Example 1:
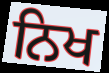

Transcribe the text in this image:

ਨਿਖ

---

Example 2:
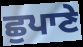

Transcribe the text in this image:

ਛੁਪਾਣੇ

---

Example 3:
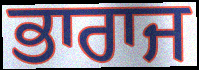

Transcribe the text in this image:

ਭਾਰਾਜ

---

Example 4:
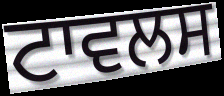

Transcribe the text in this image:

ਟਾਵਲਸ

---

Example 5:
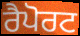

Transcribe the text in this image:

ਰੈਪੋਰਟ